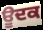
ਊਦਕ